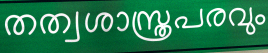
തത്വശാസ്ത്രപരവും